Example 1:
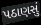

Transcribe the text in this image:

પઠાણસું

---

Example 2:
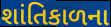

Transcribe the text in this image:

શાંતિકાળના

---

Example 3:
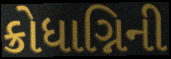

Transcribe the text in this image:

ક્રોધાગ્નિની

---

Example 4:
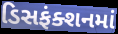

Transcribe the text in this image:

ડિસફંક્શનમાં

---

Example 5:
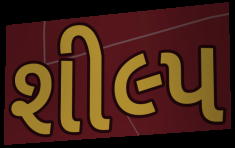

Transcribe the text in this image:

શીલ્પ